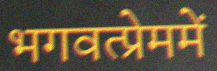
भगवत्प्रेममें